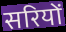
सरियों